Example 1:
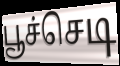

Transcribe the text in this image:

பூச்செடி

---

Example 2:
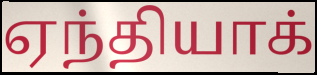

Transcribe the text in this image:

ஏந்தியாக்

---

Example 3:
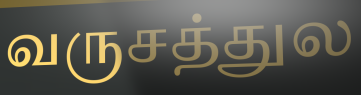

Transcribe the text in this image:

வருசத்துல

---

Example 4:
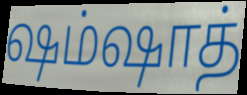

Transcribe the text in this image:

ஷம்ஷாத்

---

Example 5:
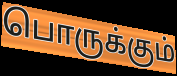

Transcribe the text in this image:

பொருக்கும்